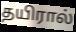
தயிரால்